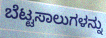
ಬೆಟ್ಟಸಾಲುಗಳನ್ನು